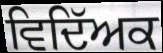
ਵਿਦਿੱਅਕ